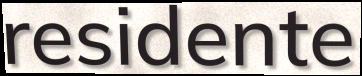
residente